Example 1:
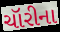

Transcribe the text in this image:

ચૉરીના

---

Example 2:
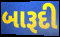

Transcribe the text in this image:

બારૂદી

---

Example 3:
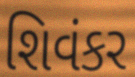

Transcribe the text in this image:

શિવંકર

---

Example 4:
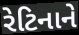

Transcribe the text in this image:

રેટિનાને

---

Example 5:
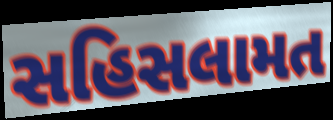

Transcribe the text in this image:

સહિસલામત